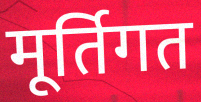
मूर्तिगत